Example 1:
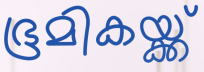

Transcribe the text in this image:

ഭൂമികയ്ക്ക്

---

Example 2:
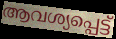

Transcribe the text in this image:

ആവശ്യപ്പെട്ട്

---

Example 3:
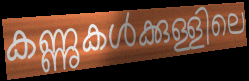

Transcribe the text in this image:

കണ്ണുകൾക്കുള്ളിലെ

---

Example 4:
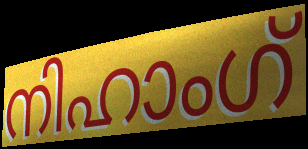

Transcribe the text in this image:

നിഹാംഗ്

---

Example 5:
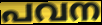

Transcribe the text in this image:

പവന